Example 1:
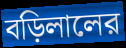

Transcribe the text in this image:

বড়িলালের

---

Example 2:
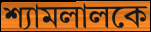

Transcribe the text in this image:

শ্যামলালকে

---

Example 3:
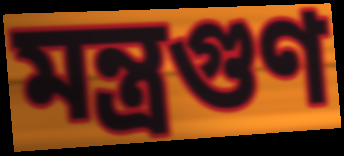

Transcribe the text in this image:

মন্ত্রগুণ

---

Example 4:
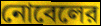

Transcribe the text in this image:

নোবেলের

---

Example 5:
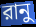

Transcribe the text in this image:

রানু